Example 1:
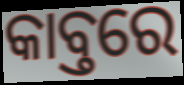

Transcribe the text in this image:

କାବ୍ତରେ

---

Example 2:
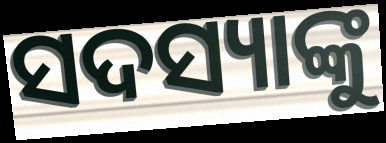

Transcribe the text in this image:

ସଦସ୍ୟାଙ୍କୁ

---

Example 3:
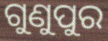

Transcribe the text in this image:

ଗୁଣୁପୁର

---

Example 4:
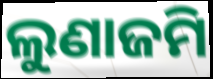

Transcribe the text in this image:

ଲୁଣାଜମି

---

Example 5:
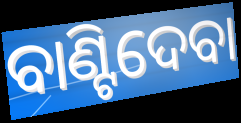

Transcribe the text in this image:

ବାଣ୍ଟିଦେବା